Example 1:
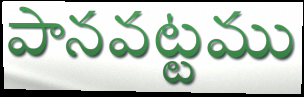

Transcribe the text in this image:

పానవట్టము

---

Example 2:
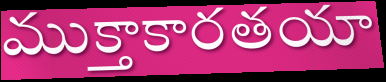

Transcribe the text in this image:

ముక్తాకారతయా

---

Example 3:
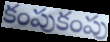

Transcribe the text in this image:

కంపుకంపు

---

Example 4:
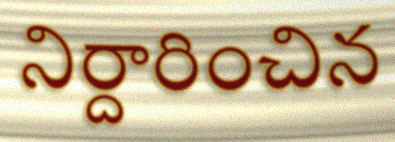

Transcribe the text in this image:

నిర్దారించిన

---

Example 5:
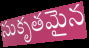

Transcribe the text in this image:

సుకృతమైన